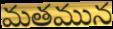
మతమున